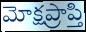
మోక్షప్రాప్తి